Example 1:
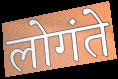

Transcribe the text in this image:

लोगंते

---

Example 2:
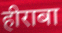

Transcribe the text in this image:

हीराबा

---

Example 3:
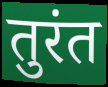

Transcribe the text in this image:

तुरंत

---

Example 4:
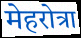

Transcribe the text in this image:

मेहरोत्रा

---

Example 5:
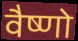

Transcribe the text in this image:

वैष्णो